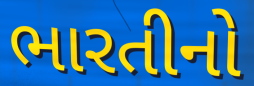
ભારતીનો